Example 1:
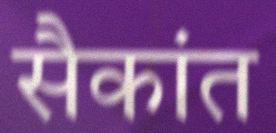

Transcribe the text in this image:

सैकांत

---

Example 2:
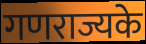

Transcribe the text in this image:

गणराज्यके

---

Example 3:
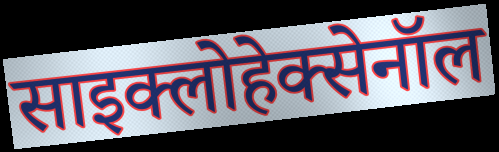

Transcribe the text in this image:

साइक्लोहेक्सेनॉल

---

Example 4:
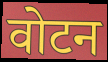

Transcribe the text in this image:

वोटन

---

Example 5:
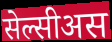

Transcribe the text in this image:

सेल्सीअस